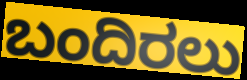
ಬಂದಿರಲು